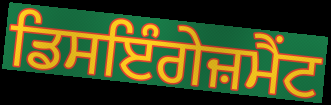
ਡਿਸਇੰਗੇਜ਼ਮੈਂਟ